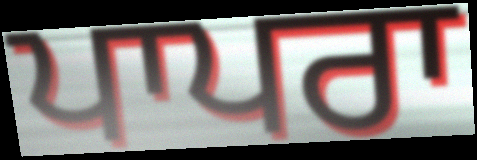
ਪਾਪਰਾ